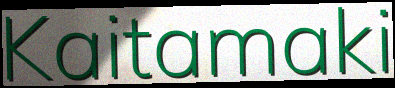
Kaitamaki